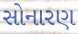
સોનારણ